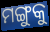
ମଙ୍ଗୁକୁ